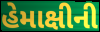
હેમાક્ષીની